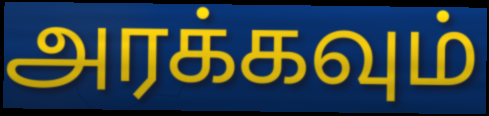
அரக்கவும்